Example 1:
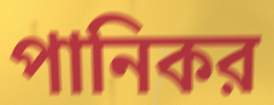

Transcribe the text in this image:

পানিকর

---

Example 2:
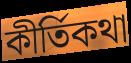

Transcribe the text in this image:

কীর্তিকথা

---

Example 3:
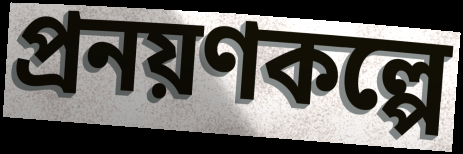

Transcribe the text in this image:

প্রনয়ণকল্পে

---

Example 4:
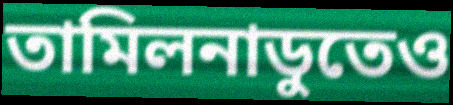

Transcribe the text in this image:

তামিলনাডুতেও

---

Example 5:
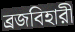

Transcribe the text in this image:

ব্রজবিহারী